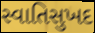
સ્વાતિસુખદ